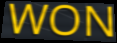
WON